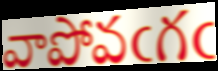
వాపోవఁగఁ